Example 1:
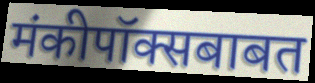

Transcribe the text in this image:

मंकीपॉक्सबाबत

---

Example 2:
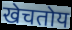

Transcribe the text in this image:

खेचतोय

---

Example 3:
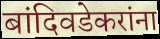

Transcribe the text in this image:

बांदिवडेकरांना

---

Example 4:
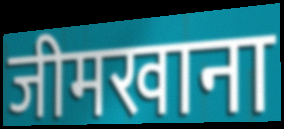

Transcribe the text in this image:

जीमखाना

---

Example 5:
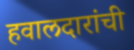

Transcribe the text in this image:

हवालदारांची